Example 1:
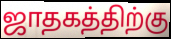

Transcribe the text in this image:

ஜாதகத்திற்கு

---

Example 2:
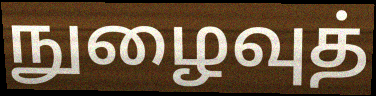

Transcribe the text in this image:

நுழைவுத்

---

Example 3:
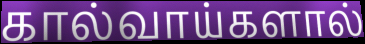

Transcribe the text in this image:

கால்வாய்களால்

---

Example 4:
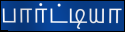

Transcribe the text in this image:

பார்ட்டியா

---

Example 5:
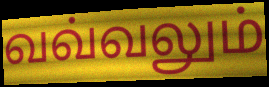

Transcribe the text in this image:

வவ்வலும்